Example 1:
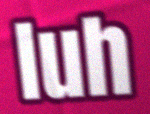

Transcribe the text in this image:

luh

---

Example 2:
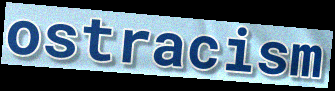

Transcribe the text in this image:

ostracism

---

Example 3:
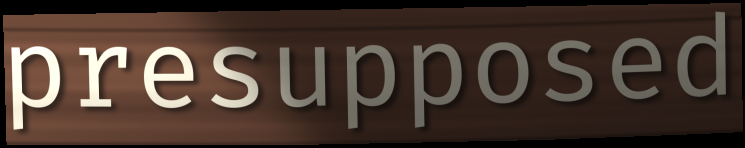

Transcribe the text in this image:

presupposed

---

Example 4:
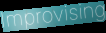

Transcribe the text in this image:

Improvising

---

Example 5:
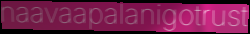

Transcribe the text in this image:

naavaapalanigotrust